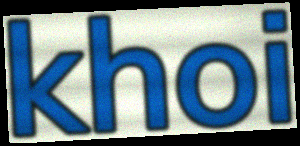
khoi